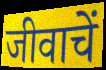
जीवाचें